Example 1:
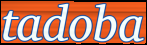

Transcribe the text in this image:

tadoba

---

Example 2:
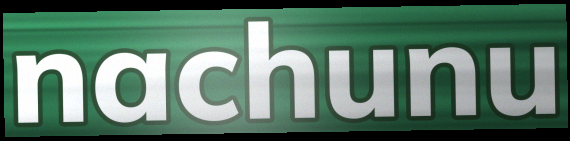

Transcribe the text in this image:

nachunu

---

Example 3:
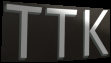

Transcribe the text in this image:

TTK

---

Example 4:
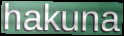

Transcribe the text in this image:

hakuna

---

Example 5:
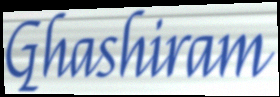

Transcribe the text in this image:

Ghashiram